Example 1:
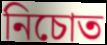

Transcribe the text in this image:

নিচোত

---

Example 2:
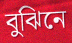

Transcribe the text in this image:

বুঝিনে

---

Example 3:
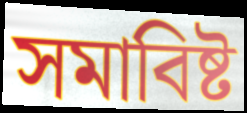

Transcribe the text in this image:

সমাবিষ্ট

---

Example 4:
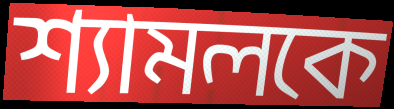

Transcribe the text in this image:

শ্যামলকে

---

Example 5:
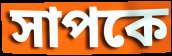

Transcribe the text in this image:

সাপকে